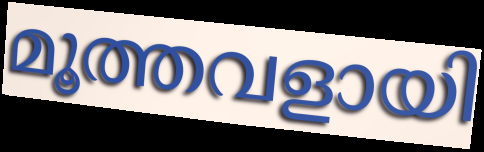
മൂത്തവളായി